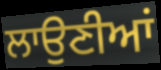
ਲਾਉਣੀਆਂ